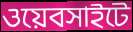
ওয়েবসাইটে